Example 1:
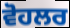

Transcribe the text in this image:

ਵੋਹਲਰ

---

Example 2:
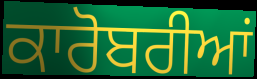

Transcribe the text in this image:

ਕਾਰੋਬਰੀਆਂ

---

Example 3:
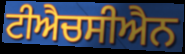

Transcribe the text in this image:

ਟੀਐਚਸੀਐਨ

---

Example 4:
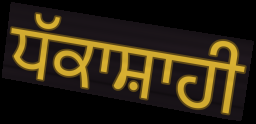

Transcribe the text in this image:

ਧੱਕਾਸ਼ਾਹੀ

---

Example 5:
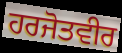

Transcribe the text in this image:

ਹਰਜੋਤਵੀਰ